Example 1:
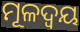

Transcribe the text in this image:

ମୂଳଦ୍ୱୟ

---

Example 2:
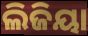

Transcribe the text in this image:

ଲିଜିୟା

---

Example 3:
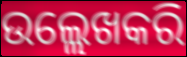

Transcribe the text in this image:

ଉଲ୍ଲେଖକରି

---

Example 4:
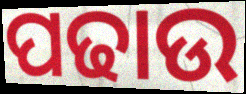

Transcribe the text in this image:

ପଢାଉ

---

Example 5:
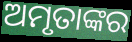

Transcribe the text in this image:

ଅମୃତାଙ୍କର